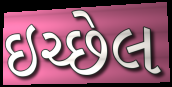
ઇચ્છેલ